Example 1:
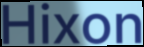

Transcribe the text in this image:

Hixon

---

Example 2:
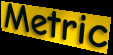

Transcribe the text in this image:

Metric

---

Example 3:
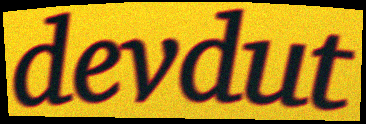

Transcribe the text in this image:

devdut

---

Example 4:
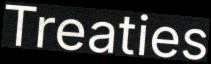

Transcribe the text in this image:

Treaties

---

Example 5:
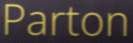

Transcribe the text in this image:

Parton